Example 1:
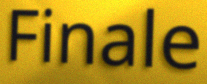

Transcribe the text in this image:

Finale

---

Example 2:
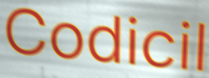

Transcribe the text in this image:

Codicil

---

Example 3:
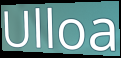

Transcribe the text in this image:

Ulloa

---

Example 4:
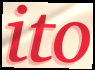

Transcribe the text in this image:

ito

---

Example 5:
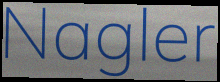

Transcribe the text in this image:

Nagler